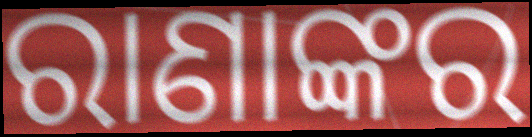
ରାଣାଙ୍କର